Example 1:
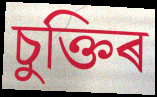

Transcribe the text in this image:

চুক্তিৰ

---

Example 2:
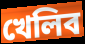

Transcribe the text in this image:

খেলিব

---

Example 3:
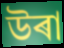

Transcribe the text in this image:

উৰা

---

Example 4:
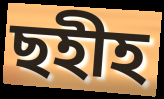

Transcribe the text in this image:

ছহীহ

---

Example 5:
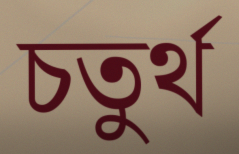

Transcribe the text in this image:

চতুৰ্থ